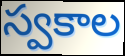
స్వకాల